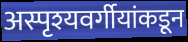
अस्पृश्यवर्गीयांकडून